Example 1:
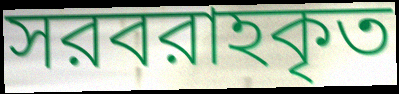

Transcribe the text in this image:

সরবরাহকৃত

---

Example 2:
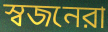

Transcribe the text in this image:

স্বজনেরা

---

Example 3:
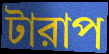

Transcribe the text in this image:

টারাপ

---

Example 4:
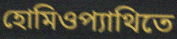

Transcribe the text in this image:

হোমিওপ্যাথিতে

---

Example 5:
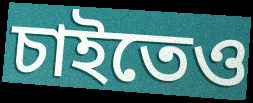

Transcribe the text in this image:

চাইতেও